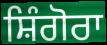
ਸ਼ਿੰਗੋਰਾ